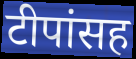
टीपांसह